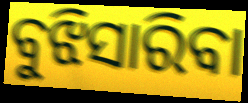
ବୁଝିସାରିବା